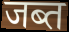
जब्त